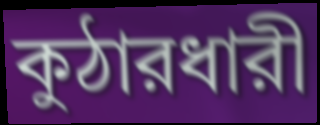
কুঠারধারী